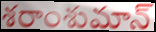
శరాంశుమాన్